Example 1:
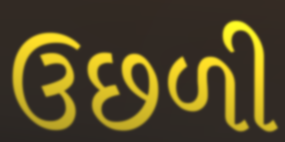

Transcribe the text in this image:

ઉછળી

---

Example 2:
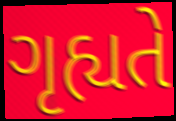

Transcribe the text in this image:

ગૃહ્યતે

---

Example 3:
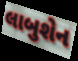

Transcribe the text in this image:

લાબુશેન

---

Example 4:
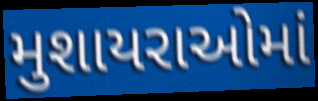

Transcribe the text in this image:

મુશાયરાઓમાં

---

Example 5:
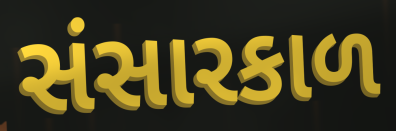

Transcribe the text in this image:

સંસારકાળ